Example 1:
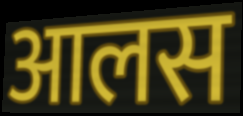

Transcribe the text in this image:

आलस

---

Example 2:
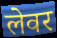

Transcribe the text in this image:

लेवर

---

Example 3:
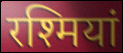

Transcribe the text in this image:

रश्मियां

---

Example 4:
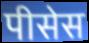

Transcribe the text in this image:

पीसेस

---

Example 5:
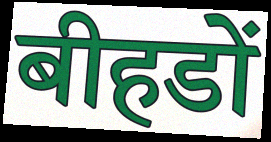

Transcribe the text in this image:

बीहडों